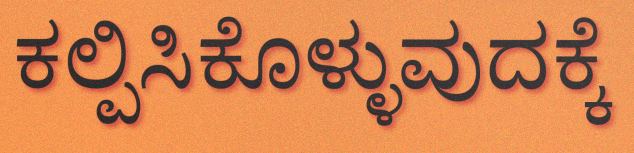
ಕಲ್ಪಿಸಿಕೊಳ್ಳುವುದಕ್ಕೆ